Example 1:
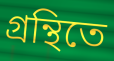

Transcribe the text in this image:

গ্রন্থিতে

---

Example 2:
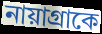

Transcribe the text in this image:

নায়াগ্রাকে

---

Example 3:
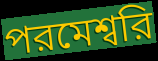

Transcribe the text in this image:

পরমেশ্বরি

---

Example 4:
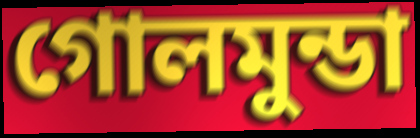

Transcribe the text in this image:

গোলমুন্ডা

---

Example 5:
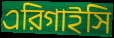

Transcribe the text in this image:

এরিগাইসি